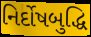
નિર્દોષબુદ્ધિ